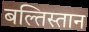
बल्तिस्तान